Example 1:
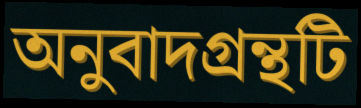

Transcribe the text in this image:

অনুবাদগ্রন্থটি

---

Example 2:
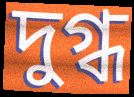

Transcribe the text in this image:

দুগ্ধ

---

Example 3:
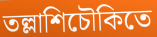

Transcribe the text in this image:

তল্লাশিচৌকিতে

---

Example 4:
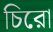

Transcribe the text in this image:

চিরো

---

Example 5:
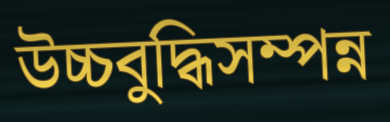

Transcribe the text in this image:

উচ্চবুদ্ধিসম্পন্ন